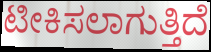
ಟೀಕಿಸಲಾಗುತ್ತಿದೆ